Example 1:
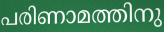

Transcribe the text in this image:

പരിണാമത്തിനു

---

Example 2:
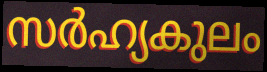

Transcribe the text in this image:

സർഹ്യകുലം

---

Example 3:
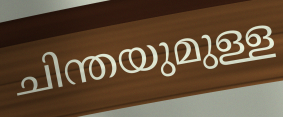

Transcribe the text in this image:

ചിന്തയുമുള്ള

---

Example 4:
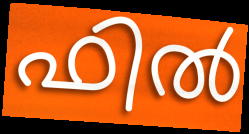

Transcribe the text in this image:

ഫിൽ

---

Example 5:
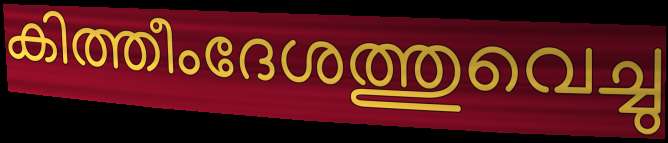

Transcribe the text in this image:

കിത്തീംദേശത്തുവെച്ചു